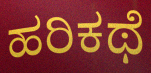
ಹರಿಕಥೆ